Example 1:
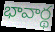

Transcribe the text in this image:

భావార్థ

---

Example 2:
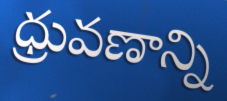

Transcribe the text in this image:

ధ్రువణాన్ని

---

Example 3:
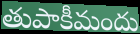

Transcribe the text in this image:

తుపాకీమందు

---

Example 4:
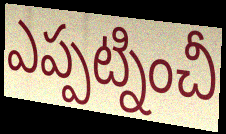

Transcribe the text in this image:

ఎప్పట్నించీ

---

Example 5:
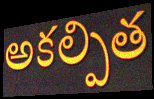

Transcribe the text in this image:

అకల్పిత